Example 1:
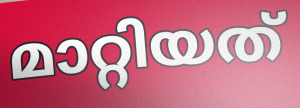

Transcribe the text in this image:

മാറ്റിയത്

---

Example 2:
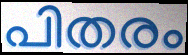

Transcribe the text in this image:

പിതരം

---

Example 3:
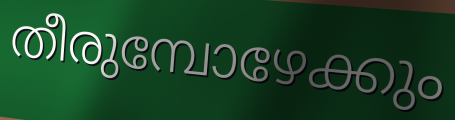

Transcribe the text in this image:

തീരുമ്പോഴേക്കും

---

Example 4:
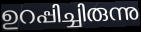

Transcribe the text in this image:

ഉറപ്പിച്ചിരുന്നു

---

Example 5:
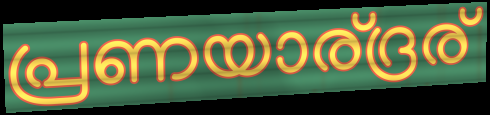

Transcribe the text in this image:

പ്രണയാര്ദ്രര്